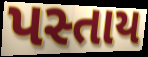
પસ્તાય